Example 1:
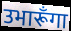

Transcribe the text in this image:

उभारूँगा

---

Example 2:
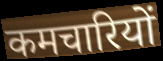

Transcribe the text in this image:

कमचारियों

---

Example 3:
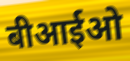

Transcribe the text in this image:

बीआईओ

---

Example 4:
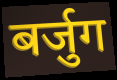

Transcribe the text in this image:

बर्जुग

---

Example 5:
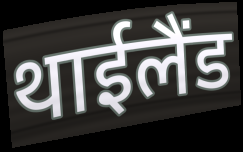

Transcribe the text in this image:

थाईलैंड